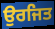
ਉਰਜਿਤ